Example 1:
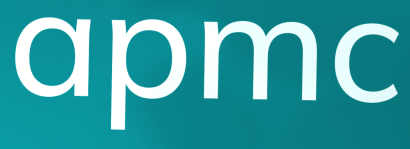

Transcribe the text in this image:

apmc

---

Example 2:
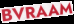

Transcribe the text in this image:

BVRAAM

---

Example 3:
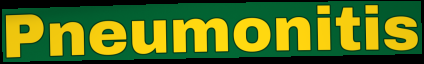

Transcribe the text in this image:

Pneumonitis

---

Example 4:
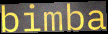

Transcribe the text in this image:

bimba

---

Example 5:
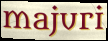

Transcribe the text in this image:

majuri